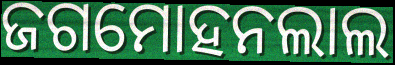
ଜଗମୋହନଲାଲ